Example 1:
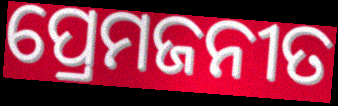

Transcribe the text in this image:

ପ୍ରେମଜନୀତ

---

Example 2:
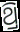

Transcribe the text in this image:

ଥ୍ରି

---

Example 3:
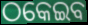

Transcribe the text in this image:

ଠକେଇବ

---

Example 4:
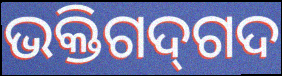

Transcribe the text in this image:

ଭକ୍ତିଗଦ୍‌ଗଦ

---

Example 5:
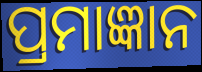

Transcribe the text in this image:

ପ୍ରମାଜ୍ଞାନ